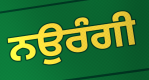
ਨਉਰੰਗੀ